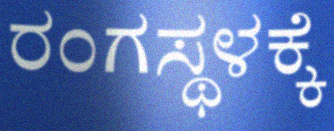
ರಂಗಸ್ಥಳಕ್ಕೆ